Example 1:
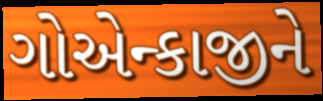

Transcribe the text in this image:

ગોએન્કાજીને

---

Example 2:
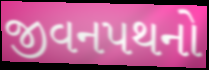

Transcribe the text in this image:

જીવનપથનો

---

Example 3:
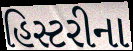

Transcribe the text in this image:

હિસ્ટરીના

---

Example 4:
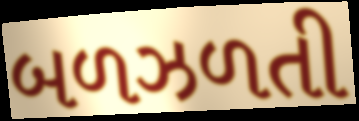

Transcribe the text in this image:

બળઝળતી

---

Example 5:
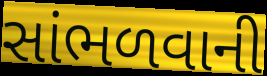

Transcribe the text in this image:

સાંભળવાની